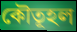
কৌতূহল